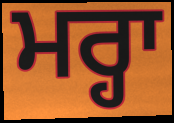
ਮਰ੍ਹਾ